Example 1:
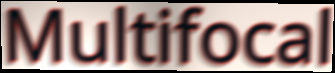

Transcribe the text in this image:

Multifocal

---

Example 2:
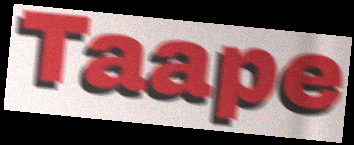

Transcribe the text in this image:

Taape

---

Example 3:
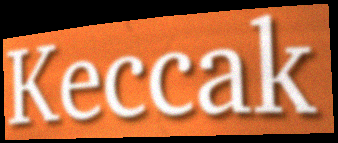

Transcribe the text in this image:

Keccak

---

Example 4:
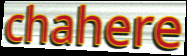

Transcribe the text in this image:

chahere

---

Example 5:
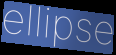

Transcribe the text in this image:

ellipse